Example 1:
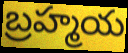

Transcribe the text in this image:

బ్రహ్మయ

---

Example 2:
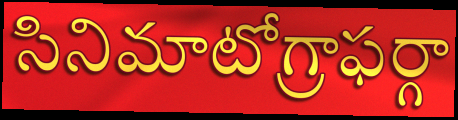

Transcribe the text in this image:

సినిమాటోగ్రాఫర్గా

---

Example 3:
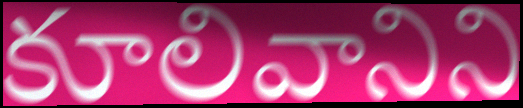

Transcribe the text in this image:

కూలివానిని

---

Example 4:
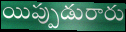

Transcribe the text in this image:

యిప్పుడురారు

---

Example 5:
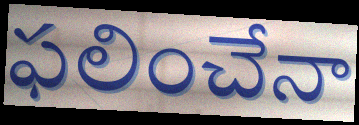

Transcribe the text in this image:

ఫలించేనా